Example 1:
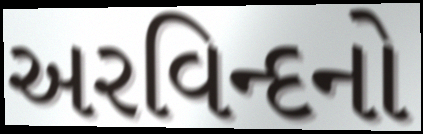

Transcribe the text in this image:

અરવિન્દનો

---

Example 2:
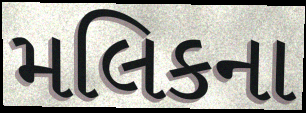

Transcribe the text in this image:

મલિકના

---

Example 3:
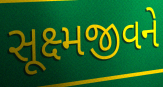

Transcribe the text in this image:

સૂક્ષ્મજીવને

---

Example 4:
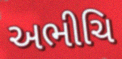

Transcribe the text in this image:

અભીચિ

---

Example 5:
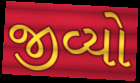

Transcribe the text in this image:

જીવ્યો